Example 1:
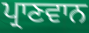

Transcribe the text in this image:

ਪ੍ਰਾਣਵਾਨ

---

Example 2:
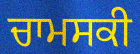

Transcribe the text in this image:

ਚਾਮਸਕੀ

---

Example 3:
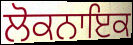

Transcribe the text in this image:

ਲੋਕਨਾਇਕ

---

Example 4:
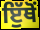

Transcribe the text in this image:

ਇੁੱਥੋਂ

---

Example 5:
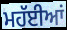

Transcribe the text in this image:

ਮਹੱਈਆਂ